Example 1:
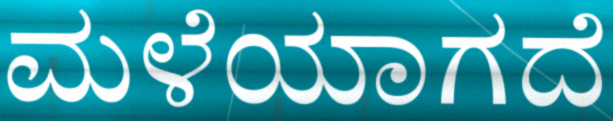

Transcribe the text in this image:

ಮಳೆಯಾಗದೆ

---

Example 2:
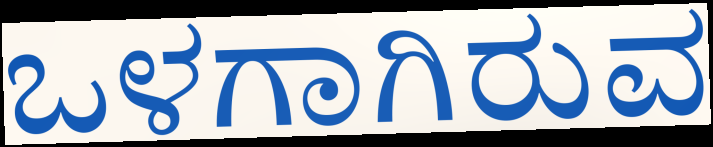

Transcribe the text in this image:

ಒಳಗಾಗಿರುವ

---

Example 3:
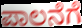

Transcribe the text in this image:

ಪಾಲನೆಗೆ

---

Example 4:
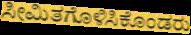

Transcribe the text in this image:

ಸೀಮಿತಗೊಳಿಸಿಕೊಂಡರು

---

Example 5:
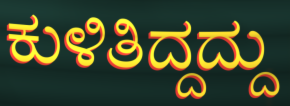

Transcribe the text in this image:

ಕುಳಿತಿದ್ದದ್ದು